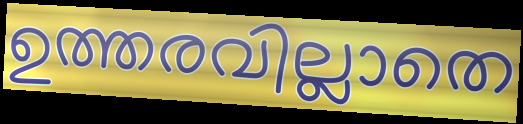
ഉത്തരവില്ലാതെ